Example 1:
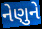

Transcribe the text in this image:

નેણુને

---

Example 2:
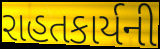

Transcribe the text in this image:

રાહતકાર્યની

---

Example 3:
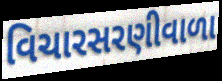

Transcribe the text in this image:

વિચારસરણીવાળા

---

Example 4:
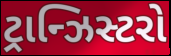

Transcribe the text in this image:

ટ્રાન્ઝિસ્ટરો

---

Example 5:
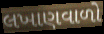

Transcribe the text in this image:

લખાણવાળો